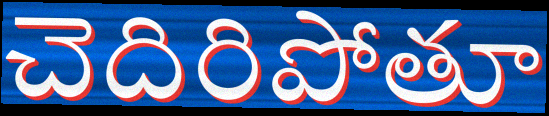
చెదిరిపోతూ